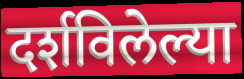
दर्शविलेल्या